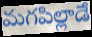
మగపిల్లాడే